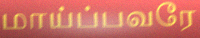
மாய்ப்பவரே